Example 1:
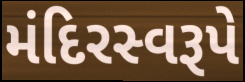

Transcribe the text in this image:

મંદિરસ્વરૂપે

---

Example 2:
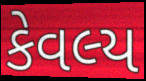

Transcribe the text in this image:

કેવલ્ય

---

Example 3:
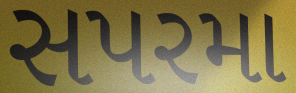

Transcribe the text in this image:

સપરમા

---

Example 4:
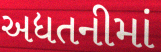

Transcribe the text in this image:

અદ્યતનીમાં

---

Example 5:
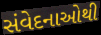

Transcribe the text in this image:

સંવેદનાઓથી